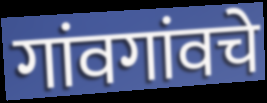
गांवगांवचे